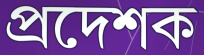
প্ৰদেশক